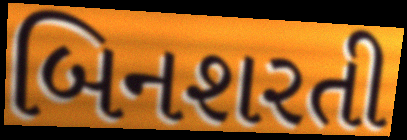
બિનશરતી